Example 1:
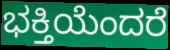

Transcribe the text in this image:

ಭಕ್ತಿಯೆಂದರೆ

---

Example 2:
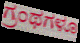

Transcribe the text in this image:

ಗ್ರಂಥಗಳೂ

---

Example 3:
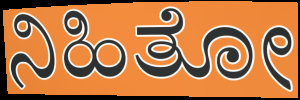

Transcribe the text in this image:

ನಿಹಿತೋ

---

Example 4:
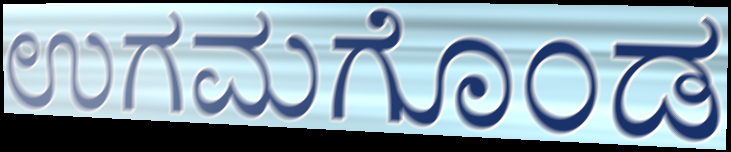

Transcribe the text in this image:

ಉಗಮಗೊಂಡ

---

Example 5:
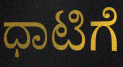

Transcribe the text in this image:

ಧಾಟಿಗೆ